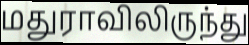
மதுராவிலிருந்து